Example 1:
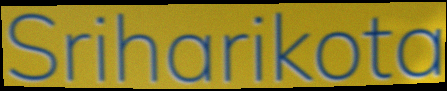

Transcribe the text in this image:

Sriharikota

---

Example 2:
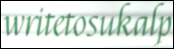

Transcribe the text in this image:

writetosukalp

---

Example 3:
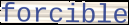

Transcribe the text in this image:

forcible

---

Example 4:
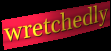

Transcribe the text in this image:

wretchedly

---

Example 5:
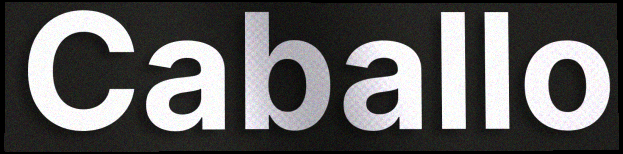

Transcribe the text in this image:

Caballo